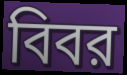
বিবর